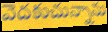
వెదకుచున్నాను